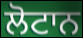
ਲੋਟਾਨ